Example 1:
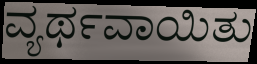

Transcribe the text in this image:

ವ್ಯರ್ಥವಾಯಿತು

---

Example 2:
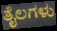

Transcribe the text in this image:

ತೈಲಗಳು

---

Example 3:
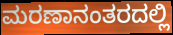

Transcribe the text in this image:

ಮರಣಾನಂತರದಲ್ಲಿ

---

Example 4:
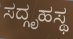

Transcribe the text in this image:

ಸದ್ಗೃಹಸ್ಥ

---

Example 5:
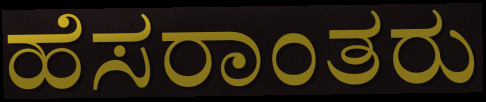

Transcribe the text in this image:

ಹೆಸರಾಂತರು